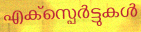
എക്സ്പെർട്ടുകൾ